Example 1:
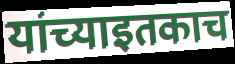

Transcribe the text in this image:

यांच्याइतकाच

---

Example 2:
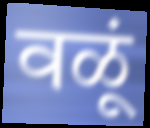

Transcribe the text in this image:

वळूं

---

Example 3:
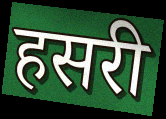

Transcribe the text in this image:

हसरी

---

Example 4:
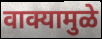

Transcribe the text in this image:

वाक्यामुळे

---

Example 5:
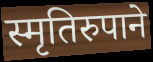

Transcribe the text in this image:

स्मृतिरुपाने